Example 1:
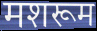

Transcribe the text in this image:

मशरूम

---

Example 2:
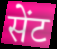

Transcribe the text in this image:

सेंट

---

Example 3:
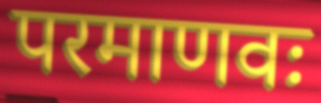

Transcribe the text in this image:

परमाणवः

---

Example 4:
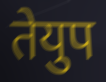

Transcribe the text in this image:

तेयुप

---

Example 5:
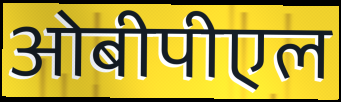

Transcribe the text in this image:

ओबीपीएल